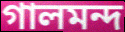
গালমন্দ